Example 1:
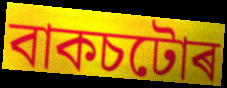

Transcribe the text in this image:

বাকচটোৰ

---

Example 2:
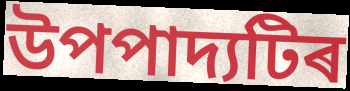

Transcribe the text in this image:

উপপাদ্যটিৰ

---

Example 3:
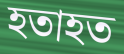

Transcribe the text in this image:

হতাহত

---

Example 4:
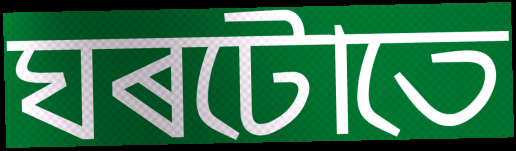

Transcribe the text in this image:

ঘৰটোতে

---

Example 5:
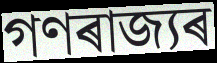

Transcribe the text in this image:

গণৰাজ্যৰ